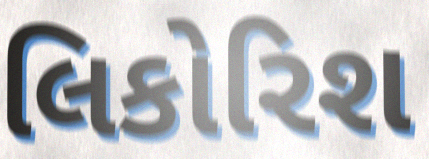
લિકોરિશ